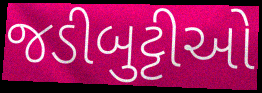
જડીબુટ્ટીઓ